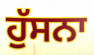
ਹੁੱਸਨਾ